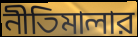
নীতিমালার